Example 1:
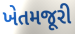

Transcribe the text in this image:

ખેતમજૂરી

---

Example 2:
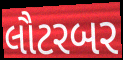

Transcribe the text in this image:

લૌટરબર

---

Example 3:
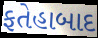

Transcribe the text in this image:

ફતેહાબાદ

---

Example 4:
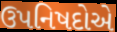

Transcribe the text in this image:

ઉપનિષદોએ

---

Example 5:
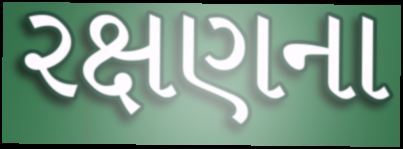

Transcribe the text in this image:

રક્ષણના